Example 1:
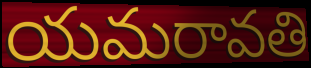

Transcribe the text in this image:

యమరావతి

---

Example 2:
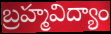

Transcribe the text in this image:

బ్రహ్మవిద్యాం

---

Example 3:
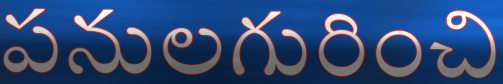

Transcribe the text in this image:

పనులగురించి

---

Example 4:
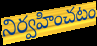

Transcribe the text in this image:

నిర్వహించటం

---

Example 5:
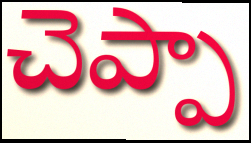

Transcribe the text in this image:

చెప్పా